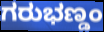
ಗರುಭಣ್ಡಂ